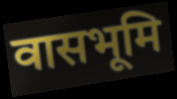
वासभूमि